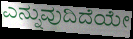
ಎನ್ನುವುದಿದೆಯೇ